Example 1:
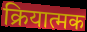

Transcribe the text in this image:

क्रियात्‍मक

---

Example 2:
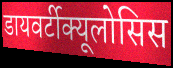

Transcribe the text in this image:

डायवर्टीक्यूलोसिस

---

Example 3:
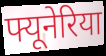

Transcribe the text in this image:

फ्यूनेरिया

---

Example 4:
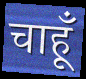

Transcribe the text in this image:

चाहूँ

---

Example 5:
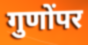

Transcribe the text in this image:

गुणोंपर